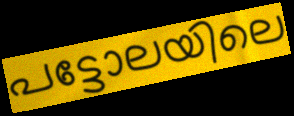
പട്ടോലയിലെ